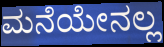
ಮನೆಯೇನಲ್ಲ